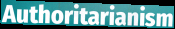
Authoritarianism